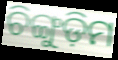
ଚିଙ୍ଗୁଡ଼ିମ